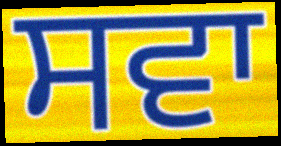
ਸਵਾ